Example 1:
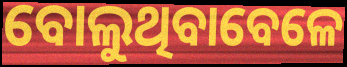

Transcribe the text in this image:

ବୋଲୁଥିବାବେଳେ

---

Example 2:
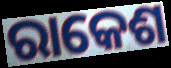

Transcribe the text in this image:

ରାକେଶ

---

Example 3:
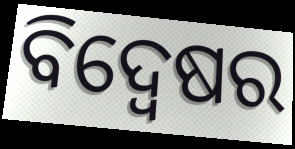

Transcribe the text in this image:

ବିଦ୍ବେଷର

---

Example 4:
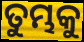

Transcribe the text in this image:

ତୁମ୍ଭକୁ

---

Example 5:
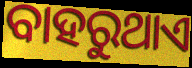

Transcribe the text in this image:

ବାହରୁଥାଏ